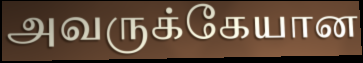
அவருக்கேயான